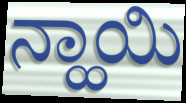
ನ್ಹಾಯಿ